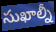
సుఖాల్నీ